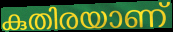
കുതിരയാണ്